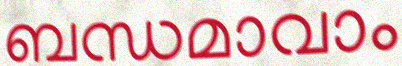
ബന്ധമാവാം